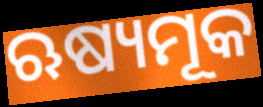
ଋଷ୍ୟମୂକ